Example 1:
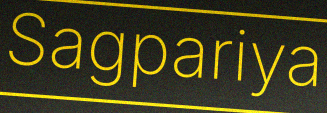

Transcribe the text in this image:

Sagpariya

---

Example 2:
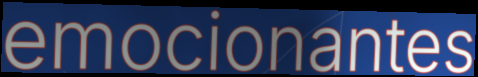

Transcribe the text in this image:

emocionantes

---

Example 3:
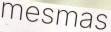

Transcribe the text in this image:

mesmas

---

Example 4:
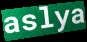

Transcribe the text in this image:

aslya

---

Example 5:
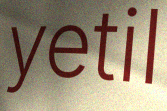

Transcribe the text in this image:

yetil